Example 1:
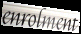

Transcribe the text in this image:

enrolment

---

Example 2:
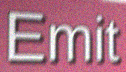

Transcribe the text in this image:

Emit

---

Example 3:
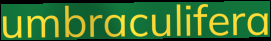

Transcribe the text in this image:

umbraculifera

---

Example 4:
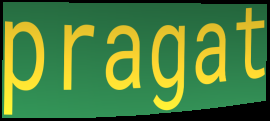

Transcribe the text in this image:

pragat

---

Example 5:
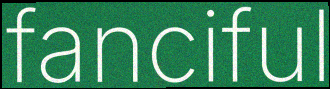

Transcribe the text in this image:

fanciful